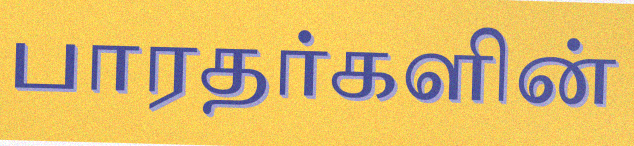
பாரதர்களின்